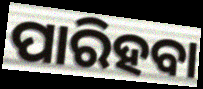
ପାରିହବା